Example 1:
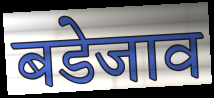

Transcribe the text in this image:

बडेजाव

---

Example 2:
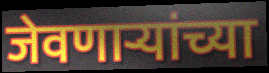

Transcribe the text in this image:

जेवणाऱ्यांच्या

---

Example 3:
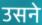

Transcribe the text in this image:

उसने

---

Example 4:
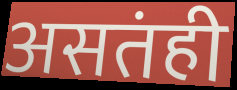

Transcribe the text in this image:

असतंही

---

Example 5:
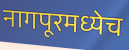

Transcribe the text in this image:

नागपूरमध्येच